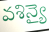
వశిన్యై